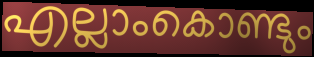
എല്ലാംകൊണ്ടും